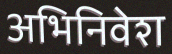
अभिनिवेश